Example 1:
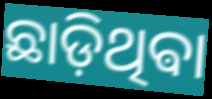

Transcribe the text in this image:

ଛାଡ଼ିଥିଵା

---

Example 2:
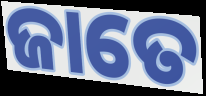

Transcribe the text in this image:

ଜାତେ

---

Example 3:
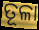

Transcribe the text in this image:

ତୂଳା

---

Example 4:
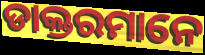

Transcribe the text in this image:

ଡାକ୍ତରମାନେ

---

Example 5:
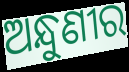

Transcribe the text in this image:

ଅନ୍ଧୁଣୀର